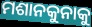
ମଶାନକୁନାକୁ